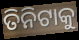
ତିନିଟାକୁ